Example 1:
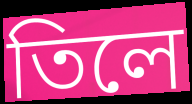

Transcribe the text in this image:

তিলে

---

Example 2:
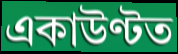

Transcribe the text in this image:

একাউণ্টত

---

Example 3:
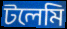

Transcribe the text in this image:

টলেমি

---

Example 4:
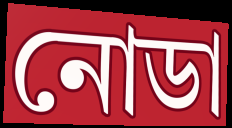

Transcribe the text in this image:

নোডা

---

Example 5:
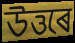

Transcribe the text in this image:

উত্তৰে